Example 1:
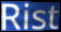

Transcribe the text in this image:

Rist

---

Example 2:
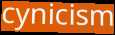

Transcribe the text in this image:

cynicism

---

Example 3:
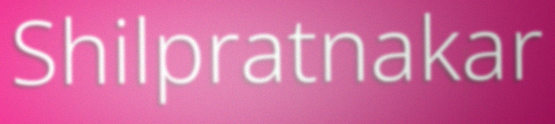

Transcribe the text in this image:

Shilpratnakar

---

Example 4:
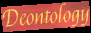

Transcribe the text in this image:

Deontology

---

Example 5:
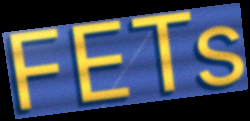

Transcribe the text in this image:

FETs